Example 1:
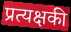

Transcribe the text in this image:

प्रत्यक्षकी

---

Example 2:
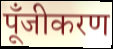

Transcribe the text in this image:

पूँजीकरण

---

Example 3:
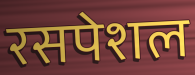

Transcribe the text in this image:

रसपेशल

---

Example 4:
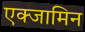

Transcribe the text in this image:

एक्जामिन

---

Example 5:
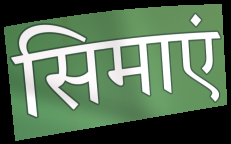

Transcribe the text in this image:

सिमाएं